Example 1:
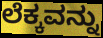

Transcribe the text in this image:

ಲೆಕ್ಕವನ್ನು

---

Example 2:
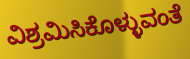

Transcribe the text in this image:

ವಿಶ್ರಮಿಸಿಕೊಳ್ಳುವಂತೆ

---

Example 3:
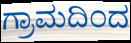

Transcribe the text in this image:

ಗ್ರಾಮದಿಂದ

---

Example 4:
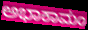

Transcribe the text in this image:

ಅಭಾಕಾಮಂ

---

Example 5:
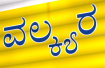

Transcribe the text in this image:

ವಲ್ಕ್ಯರ